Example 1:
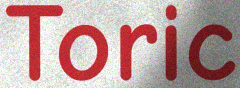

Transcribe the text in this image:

Toric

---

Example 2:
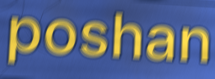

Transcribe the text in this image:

poshan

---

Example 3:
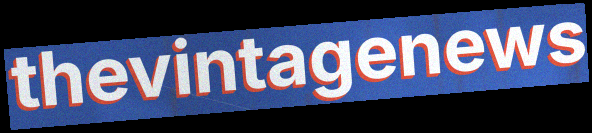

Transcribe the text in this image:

thevintagenews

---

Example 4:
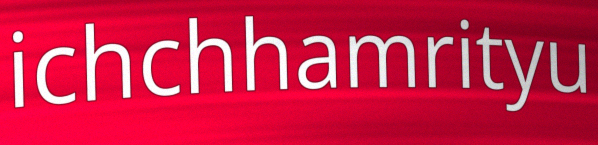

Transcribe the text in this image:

ichchhamrityu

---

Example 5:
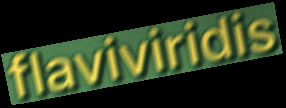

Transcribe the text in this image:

flaviviridis